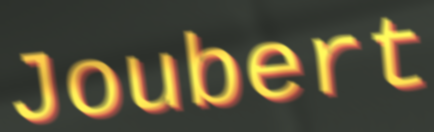
Joubert